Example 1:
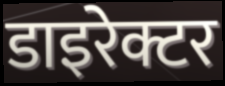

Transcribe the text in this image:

डाइरेक्टर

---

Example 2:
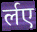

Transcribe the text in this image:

र्लए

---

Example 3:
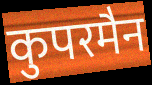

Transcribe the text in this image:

कुपरमैन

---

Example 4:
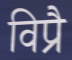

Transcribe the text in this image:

विप्रै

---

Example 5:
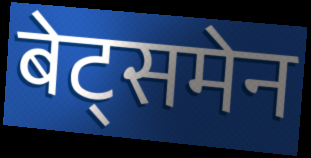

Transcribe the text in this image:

बेट्समेन